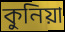
কুনিয়া